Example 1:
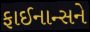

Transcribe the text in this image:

ફાઈનાન્સને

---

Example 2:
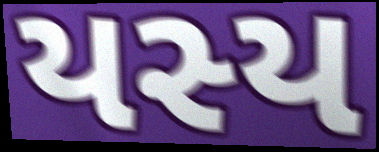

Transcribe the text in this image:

યસ્ય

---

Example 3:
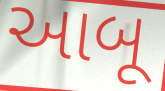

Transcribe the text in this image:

આબૂ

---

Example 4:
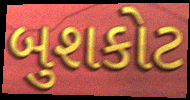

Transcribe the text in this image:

બુશકોટ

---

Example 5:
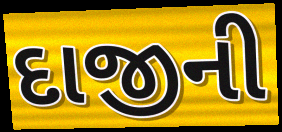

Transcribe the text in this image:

દાજીની